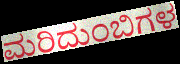
ಮರಿದುಂಬಿಗಳ